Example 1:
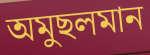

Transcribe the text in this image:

অমুছলমান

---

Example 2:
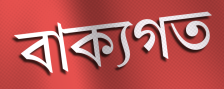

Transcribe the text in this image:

বাক্যগত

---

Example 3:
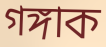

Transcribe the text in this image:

গঙ্গাক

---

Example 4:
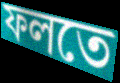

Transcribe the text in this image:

ফলতে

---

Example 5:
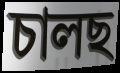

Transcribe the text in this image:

চালছ